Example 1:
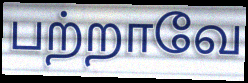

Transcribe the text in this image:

பற்றாவே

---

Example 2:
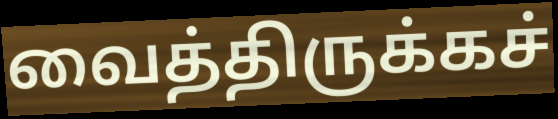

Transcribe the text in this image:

வைத்திருக்கச்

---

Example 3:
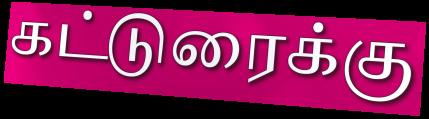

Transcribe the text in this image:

கட்டுரைக்கு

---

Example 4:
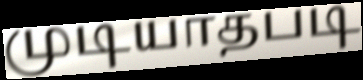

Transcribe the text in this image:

முடியாதபடி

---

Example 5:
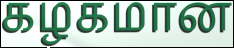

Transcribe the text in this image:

கழகமான